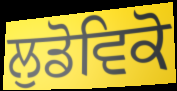
ਲੁਡੋਵਿਕੋ